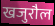
खजुरौल